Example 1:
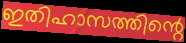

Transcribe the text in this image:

ഇതിഹാസത്തിന്റെ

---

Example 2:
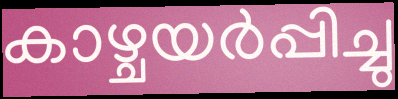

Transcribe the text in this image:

കാഴ്ചയർപ്പിച്ചു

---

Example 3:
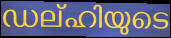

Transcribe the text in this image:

ഡല്ഹിയുടെ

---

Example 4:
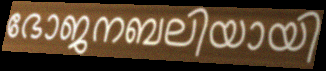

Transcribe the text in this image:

ഭോജനബലിയായി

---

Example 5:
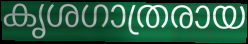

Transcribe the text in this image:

കൃശഗാത്രരായ